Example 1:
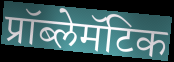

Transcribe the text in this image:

प्रॉब्लेमॅटिक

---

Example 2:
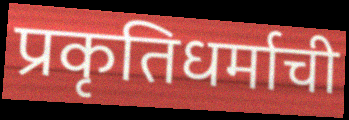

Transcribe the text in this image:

प्रकृतिधर्माची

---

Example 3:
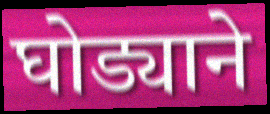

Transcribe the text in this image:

घोड्याने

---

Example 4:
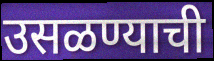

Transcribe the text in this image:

उसळण्याची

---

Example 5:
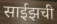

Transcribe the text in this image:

साईझची